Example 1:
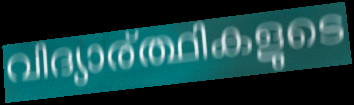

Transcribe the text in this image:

വിദ്യാര്ത്ഥികളുടെ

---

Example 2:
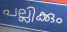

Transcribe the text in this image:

പല്ലിക്കും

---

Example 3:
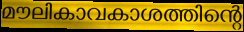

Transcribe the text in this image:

മൗലികാവകാശത്തിന്റെ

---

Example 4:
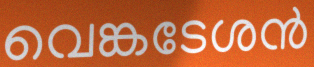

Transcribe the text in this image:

വെങ്കടേശൻ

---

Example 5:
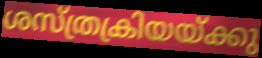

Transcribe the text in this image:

ശസ്ത്രക്രിയയ്ക്കു